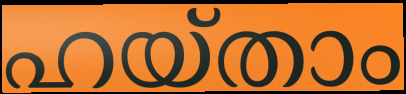
ഹയ്താം